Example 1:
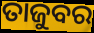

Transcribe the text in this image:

ତାଜୁବର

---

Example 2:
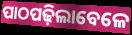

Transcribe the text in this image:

ପାଠପଢ଼ିଲାବେଳେ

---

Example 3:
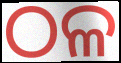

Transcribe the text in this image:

ଠଳ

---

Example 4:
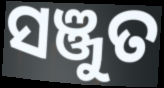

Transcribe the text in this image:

ସଞ୍ଜୁତ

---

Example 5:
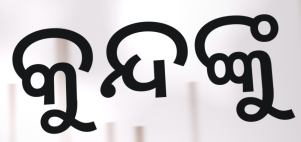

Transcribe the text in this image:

କୁନ୍ଦଙ୍କୁ